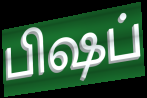
பிஷப்